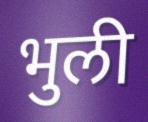
भुली